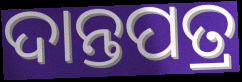
ଦାନ୍ତପତ୍ର